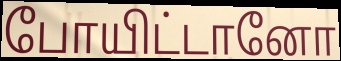
போயிட்டானோ